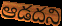
ఆడదని